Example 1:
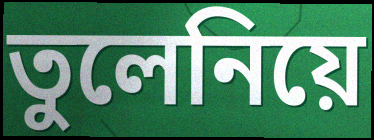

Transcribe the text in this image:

তুলেনিয়ে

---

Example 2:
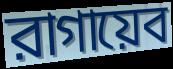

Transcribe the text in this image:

রাগায়েব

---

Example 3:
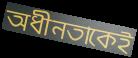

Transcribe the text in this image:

অধীনতাকেই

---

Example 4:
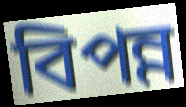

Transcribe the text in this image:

বিপন্ন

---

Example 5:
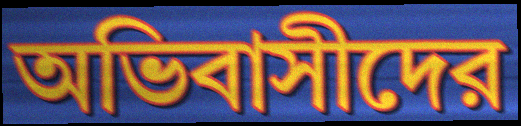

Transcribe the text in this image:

অভিবাসীদের